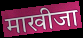
माखीजा